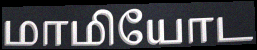
மாமியோட